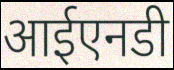
आईएनडी